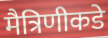
मैत्रिणीकडे